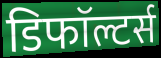
डिफॉल्टर्स